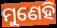
ମୁଣେହି